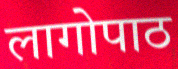
लागोपाठ